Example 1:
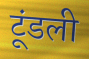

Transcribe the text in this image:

टूंडली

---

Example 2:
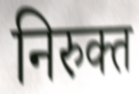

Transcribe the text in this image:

निरुक्त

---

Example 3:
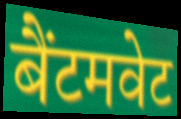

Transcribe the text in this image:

बैंटमवेट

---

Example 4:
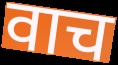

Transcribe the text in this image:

वाच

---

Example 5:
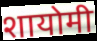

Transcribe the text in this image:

शायोमी